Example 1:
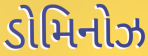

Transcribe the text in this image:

ડોમિનોઝ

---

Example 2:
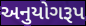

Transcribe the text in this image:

અનુયોગરૂપ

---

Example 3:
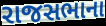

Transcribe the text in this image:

રાજસભાના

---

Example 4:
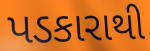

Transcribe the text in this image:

પડકારાથી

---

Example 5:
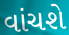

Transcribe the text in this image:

વાંચશે